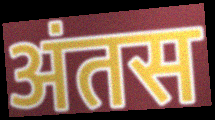
अंतस